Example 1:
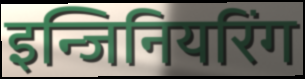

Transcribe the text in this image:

इन्जिनियरिंग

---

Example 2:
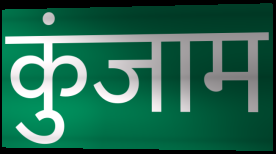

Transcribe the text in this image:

कुंजाम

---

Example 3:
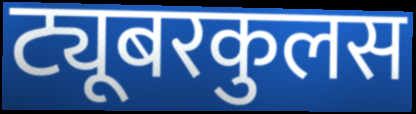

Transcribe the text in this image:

ट्यूबरकुलस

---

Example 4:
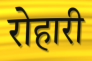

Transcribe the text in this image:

रोहारी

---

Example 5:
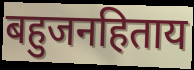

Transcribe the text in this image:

बहुजनहिताय